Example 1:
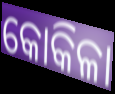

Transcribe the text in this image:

କୋକିଳା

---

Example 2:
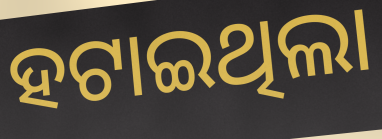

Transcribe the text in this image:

ହଟାଇଥିଲା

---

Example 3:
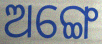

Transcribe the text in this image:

ଅଙ୍ଗେ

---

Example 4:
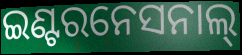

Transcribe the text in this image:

ଇଣ୍ଟରନେସନାଲ୍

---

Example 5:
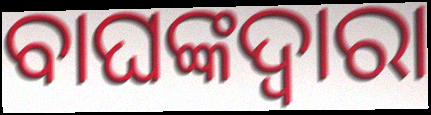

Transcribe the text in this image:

ବାଘଙ୍କଦ୍ୱାରା